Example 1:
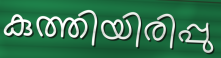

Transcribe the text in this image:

കുത്തിയിരിപ്പു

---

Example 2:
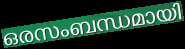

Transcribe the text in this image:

ഒരസംബന്ധമായി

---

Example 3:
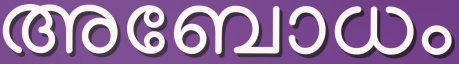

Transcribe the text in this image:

അബോധം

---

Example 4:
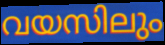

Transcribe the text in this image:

വയസിലും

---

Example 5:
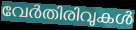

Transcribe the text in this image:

വേർതിരിവുകൾ